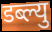
डब्ल्यु